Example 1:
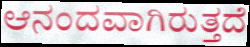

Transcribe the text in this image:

ಆನಂದವಾಗಿರುತ್ತದೆ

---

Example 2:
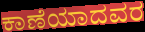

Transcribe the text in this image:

ಕಾಣೆಯಾದವರ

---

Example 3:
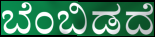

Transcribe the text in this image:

ಬೆಂಬಿಡದೆ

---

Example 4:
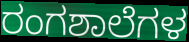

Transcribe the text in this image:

ರಂಗಶಾಲೆಗಳ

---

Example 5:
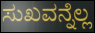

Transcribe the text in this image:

ಸುಖವನ್ನೆಲ್ಲ